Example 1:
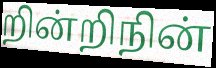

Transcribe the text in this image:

றின்றிநின்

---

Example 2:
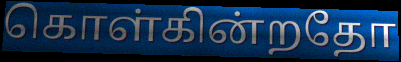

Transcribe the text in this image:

கொள்கின்றதோ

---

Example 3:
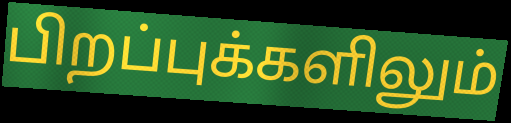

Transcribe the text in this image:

பிறப்புக்களிலும்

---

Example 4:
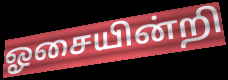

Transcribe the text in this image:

ஓசையின்றி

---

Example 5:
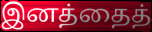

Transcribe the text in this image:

இனத்தைத்